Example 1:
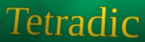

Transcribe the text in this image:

Tetradic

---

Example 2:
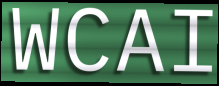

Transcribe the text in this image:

WCAI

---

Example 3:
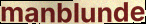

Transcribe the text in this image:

manblunde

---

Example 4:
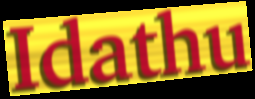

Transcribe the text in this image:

Idathu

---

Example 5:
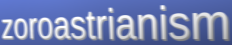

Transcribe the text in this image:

zoroastrianism